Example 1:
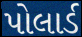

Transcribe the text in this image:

પોલાર્ડ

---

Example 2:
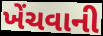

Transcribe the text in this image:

ખેંચવાની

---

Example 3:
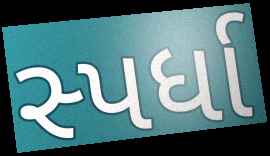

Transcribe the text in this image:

સ્પર્ધા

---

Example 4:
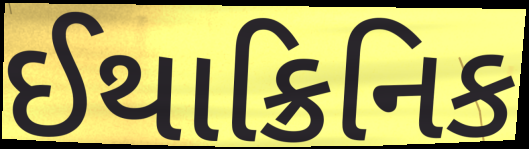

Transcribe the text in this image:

ઈથાક્રિનિક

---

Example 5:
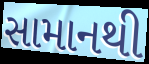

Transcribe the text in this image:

સામાનથી